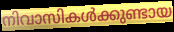
നിവാസികൾക്കുണ്ടായ